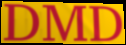
DMD